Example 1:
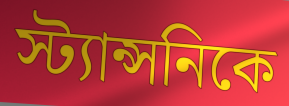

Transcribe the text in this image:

স্ট্যান্সনিকে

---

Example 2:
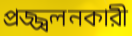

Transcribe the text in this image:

প্রজ্জ্বলনকারী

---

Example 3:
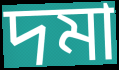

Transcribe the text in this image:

দমা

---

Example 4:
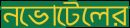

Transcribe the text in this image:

নভোটেলের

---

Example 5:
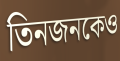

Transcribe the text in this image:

তিনজনকেও